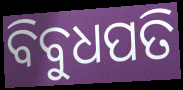
ବିବୁଧପତି